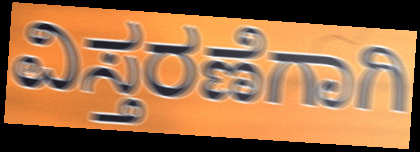
ವಿಸ್ತರಣೆಗಾಗಿ